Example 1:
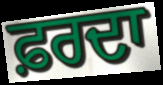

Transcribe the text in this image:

ਫ਼ਰਦਾ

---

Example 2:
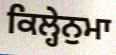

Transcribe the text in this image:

ਕਿਲ੍ਹੇਨੁਮਾ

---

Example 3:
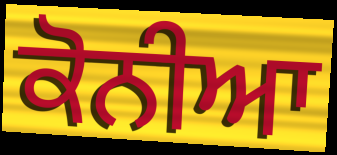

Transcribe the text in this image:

ਕੋਨੀਆ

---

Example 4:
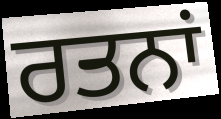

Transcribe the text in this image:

ਰਤਨਾਂ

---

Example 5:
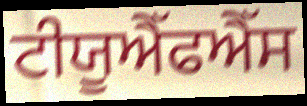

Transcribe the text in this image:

ਟੀਯੂਐੱਫਐੱਸ